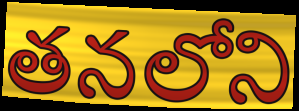
తనలోని